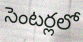
సెంటర్లలో